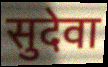
सुदेवा